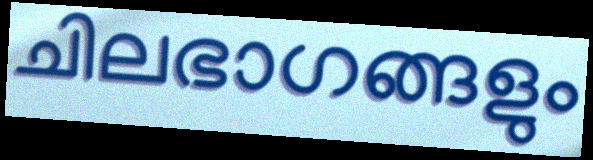
ചിലഭാഗങ്ങളും